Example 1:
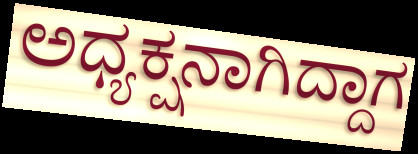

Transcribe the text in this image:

ಅಧ್ಯಕ್ಷನಾಗಿದ್ದಾಗ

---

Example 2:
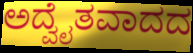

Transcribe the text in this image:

ಅದ್ವೈತವಾದದ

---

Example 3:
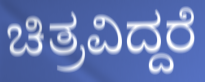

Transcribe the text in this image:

ಚಿತ್ರವಿದ್ದರೆ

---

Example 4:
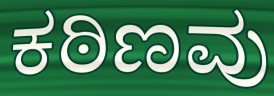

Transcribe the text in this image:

ಕಠಿಣವು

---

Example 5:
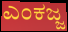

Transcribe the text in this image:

ಎಂಕಜ್ಜ